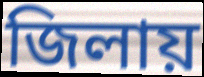
জিলায়